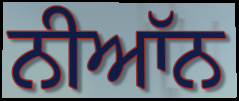
ਨੀਆੱਨ